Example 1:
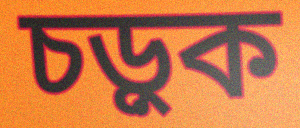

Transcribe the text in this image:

চড়ুক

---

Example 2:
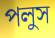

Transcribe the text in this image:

পলুস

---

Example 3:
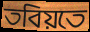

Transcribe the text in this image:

তবিয়তে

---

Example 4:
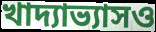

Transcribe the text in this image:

খাদ্যাভ্যাসও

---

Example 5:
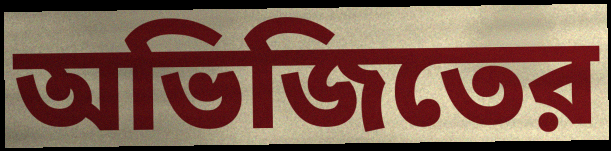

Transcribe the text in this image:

অভিজিতের